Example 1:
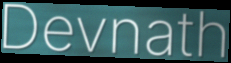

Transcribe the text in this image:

Devnath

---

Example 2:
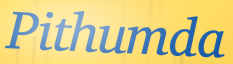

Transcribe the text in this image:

Pithumda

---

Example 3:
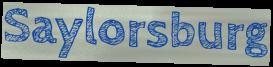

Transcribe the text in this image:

Saylorsburg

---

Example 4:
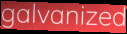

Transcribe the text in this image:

galvanized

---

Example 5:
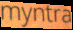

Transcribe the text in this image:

myntra